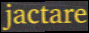
jactare